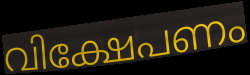
വിക്ഷേപണം